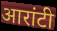
आरांटी